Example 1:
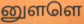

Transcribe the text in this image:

னுளளெ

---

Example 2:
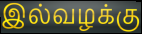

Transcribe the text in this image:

இல்வழக்கு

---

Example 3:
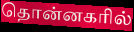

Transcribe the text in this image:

தொன்னகரில்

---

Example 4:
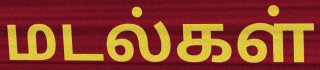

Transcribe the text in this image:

மடல்கள்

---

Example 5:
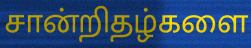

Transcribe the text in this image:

சான்றிதழ்களை